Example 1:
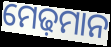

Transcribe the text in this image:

ମେଢ଼ମାନ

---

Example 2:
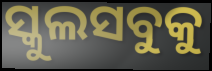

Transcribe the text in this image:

ସ୍କୁଲସବୁକୁ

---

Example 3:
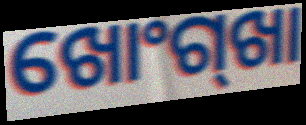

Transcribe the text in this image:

ଖୋଂଗ୍‍ଖା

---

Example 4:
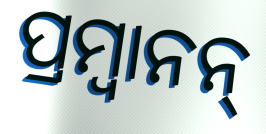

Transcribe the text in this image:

ପ୍ରମ୍ବାନନ୍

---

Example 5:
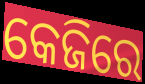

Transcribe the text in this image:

କେଜିରେ